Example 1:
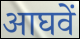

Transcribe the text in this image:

आघवें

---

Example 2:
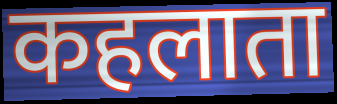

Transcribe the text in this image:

कहलाता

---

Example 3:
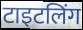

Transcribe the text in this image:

टाइटलिंग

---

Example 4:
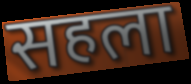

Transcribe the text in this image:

सहला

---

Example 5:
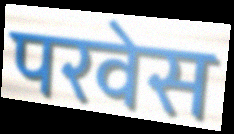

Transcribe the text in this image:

परवेस